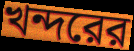
খন্দরের